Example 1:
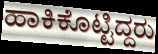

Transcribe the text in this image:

ಹಾಕಿಕೊಟ್ಟಿದ್ದರು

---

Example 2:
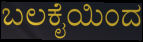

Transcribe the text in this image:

ಬಲಕೈಯಿಂದ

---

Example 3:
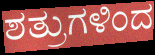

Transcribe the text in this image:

ಶತ್ರುಗಳಿಂದ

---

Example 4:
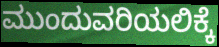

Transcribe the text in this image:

ಮುಂದುವರಿಯಲಿಕ್ಕೆ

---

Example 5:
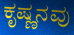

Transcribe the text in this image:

ಕೃಷ್ಣನವು